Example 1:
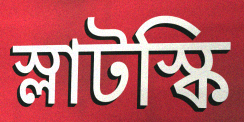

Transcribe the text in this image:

স্লাটস্কি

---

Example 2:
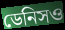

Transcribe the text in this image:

ডেনিসও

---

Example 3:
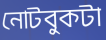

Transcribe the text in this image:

নোটবুকটা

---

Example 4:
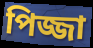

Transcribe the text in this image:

পিজ্জা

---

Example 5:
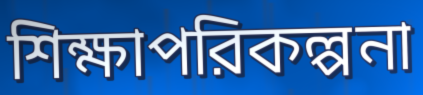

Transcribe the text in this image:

শিক্ষাপরিকল্পনা